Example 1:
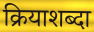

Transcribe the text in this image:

क्रियाशब्दा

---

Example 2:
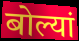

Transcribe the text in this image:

बोल्यां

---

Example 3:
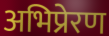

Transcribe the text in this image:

अभिप्रेरण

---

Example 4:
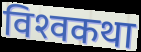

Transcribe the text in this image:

विश्वकथा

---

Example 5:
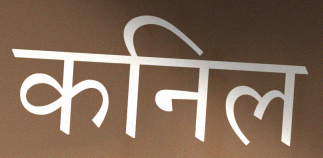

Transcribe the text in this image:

कनिल